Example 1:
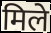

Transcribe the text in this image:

मिले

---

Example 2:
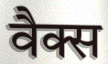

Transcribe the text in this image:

वैक्स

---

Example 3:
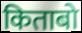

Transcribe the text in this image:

किताबो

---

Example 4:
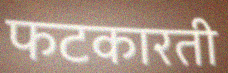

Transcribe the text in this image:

फटकारती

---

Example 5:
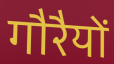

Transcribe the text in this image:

गौरैयों